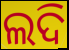
ଲଦି